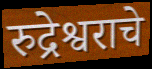
रुद्रेश्वराचे